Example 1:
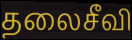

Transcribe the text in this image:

தலைசீவி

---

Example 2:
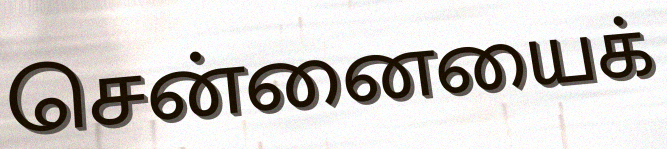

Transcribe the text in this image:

சென்னையைக்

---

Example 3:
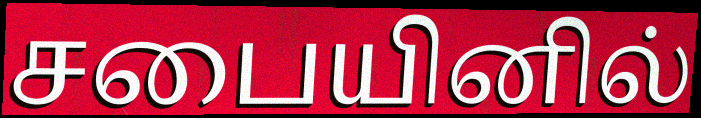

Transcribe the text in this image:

சபையினில்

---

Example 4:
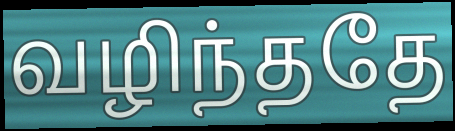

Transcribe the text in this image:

வழிந்ததே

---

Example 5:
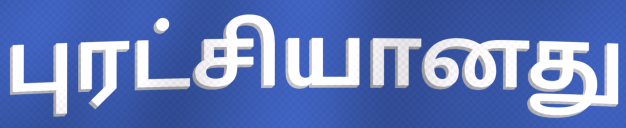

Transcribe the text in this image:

புரட்சியானது